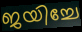
ജയിച്ചേ